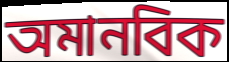
অমানবিক